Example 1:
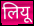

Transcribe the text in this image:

लियू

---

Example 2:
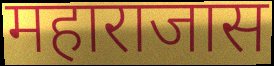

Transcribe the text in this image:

महाराजास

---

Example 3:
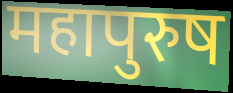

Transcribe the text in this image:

महापुरुष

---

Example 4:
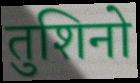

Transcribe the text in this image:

तुशिनो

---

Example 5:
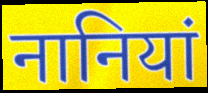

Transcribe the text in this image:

नानियां